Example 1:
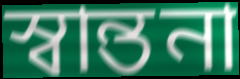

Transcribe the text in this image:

স্বান্তনা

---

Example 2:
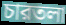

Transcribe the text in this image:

চারতলা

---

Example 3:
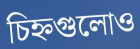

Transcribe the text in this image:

চিহ্নগুলোও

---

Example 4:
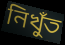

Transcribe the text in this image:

নিখুঁত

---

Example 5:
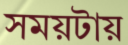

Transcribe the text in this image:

সময়টায়